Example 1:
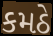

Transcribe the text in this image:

કમઠે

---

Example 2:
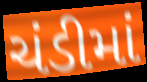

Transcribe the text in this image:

ચંડીમાં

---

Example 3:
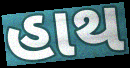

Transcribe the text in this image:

હાથ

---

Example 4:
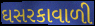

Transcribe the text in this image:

ઘસરકાવાળી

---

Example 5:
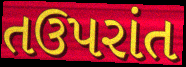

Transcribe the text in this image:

તઉપરાંત